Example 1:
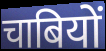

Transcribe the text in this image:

चाबियों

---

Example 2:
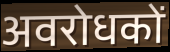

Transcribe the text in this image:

अवरोधकों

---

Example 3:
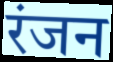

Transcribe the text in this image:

रंजन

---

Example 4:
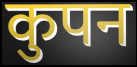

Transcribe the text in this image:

कुपन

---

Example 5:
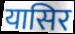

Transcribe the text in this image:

यासिर